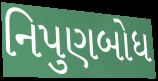
નિપુણબોધ